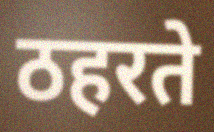
ठहरते